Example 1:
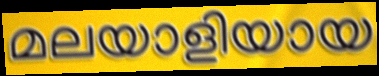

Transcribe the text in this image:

മലയാളിയായ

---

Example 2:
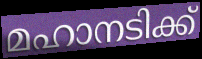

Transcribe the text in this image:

മഹാനടിക്ക്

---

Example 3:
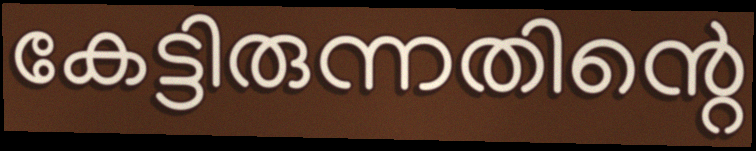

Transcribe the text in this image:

കേട്ടിരുന്നതിന്റെ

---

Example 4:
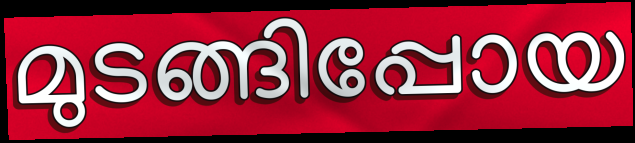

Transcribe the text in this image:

മുടങ്ങിപ്പോയ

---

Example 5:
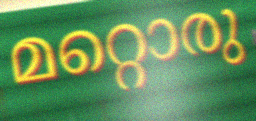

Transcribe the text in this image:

മറ്റൊരു